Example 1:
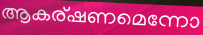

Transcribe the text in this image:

ആകര്ഷണമെന്നോ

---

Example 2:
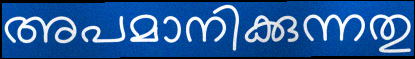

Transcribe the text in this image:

അപമാനിക്കുന്നതു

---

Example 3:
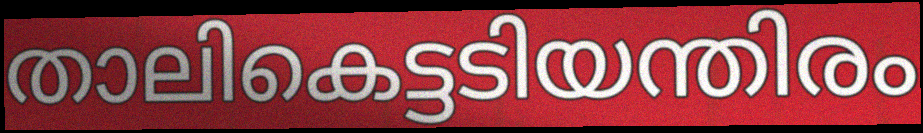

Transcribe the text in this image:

താലികെട്ടടിയന്തിരം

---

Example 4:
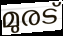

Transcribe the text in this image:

മുരട്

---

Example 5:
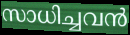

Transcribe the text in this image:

സാധിച്ചവൻ